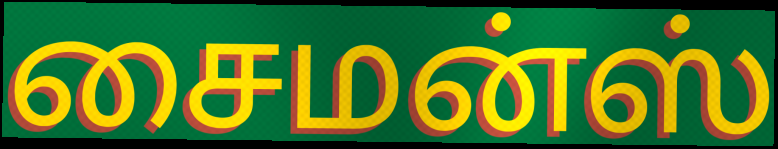
சைமன்ஸ்